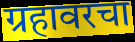
ग्रहावरचा